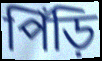
পিঁড়ি